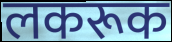
लकरूक